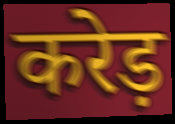
करेड़